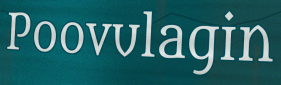
Poovulagin